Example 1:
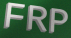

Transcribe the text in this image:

FRP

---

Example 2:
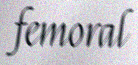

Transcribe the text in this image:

femoral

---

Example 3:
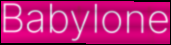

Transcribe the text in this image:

Babylone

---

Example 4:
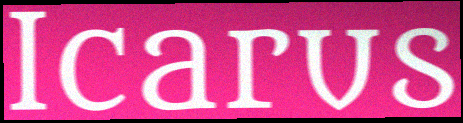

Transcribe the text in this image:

Icarus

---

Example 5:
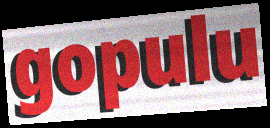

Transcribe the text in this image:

gopulu